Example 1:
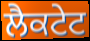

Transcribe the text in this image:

ਲੈਕਟੇਟ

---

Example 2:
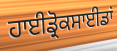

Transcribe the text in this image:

ਹਾਈਡ੍ਰੋਕਸਾਈਡਾਂ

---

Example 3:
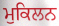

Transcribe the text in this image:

ਮੁਕਿਲਨ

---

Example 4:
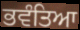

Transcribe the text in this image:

ਭਵੰਤਿਆ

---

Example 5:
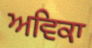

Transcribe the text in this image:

ਅਵਿਕਾ